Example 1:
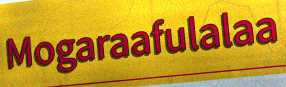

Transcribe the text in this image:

Mogaraafulalaa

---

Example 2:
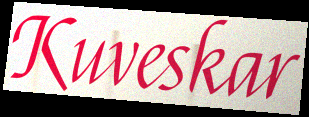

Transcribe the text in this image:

Kuveskar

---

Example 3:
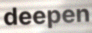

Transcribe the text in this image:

deepen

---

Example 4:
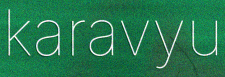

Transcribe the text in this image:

karavyu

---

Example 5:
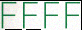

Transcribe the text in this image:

FFFF